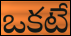
ఒకటే